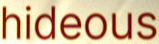
hideous